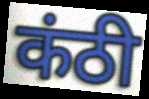
कंठी